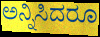
ಅನ್ನಿಸಿದರೂ